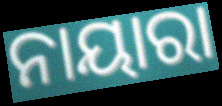
ନାୟାରା